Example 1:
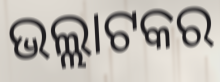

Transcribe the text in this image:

ଭଲ୍ଲାଟକର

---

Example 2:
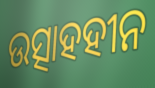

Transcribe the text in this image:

ଉତ୍ସାହହୀନ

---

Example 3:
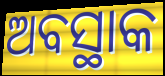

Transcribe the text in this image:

ଅବସ୍ଥାକ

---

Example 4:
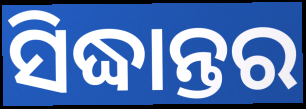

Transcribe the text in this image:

ସିଦ୍ଧାନ୍ତର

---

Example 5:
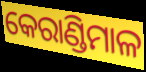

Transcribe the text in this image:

କେରାଣ୍ଡିମାଳ